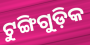
ଟୁଙ୍ଗିଗୁଡ଼ିକ